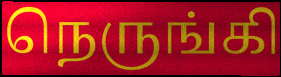
நெருங்கி